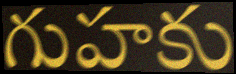
గుహకు